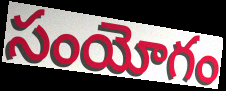
సంయోగం